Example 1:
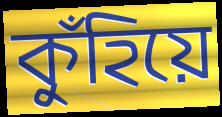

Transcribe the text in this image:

কুঁহিয়ে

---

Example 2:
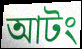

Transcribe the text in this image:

আটং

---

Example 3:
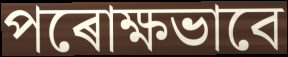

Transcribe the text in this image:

পৰোক্ষভাবে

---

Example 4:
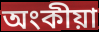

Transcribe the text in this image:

অংকীয়া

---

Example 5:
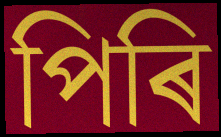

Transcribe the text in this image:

পিৰি